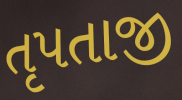
તૃપતાજી